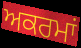
ਅਕਰਮਾਂ